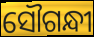
ସୌଗନ୍ଧୀ